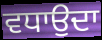
ਵਧਾਉਦਾ